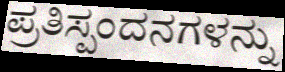
ಪ್ರತಿಸ್ಪಂದನಗಳನ್ನು